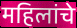
महिलांचे